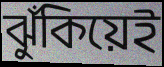
ঝুঁকিয়েই